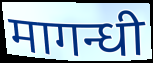
मागन्धी